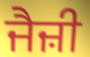
ਜੈਜ਼ੀ